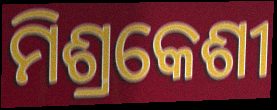
ମିଶ୍ରକେଶୀ